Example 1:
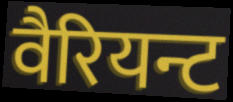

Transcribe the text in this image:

वैरियन्ट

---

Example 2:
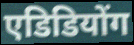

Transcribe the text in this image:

एडिडियोंग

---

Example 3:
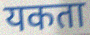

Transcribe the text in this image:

यकता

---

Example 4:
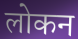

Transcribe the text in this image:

लोकन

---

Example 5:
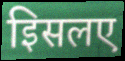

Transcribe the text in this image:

इिसलए